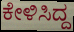
ಕೇಳಿಸಿದ್ದ